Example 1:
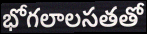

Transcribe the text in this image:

భోగలాలసతతో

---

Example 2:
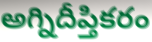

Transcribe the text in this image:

అగ్నిదీప్తికరం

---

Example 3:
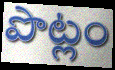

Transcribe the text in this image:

పొట్లం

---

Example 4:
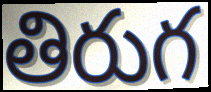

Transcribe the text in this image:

తిరుగ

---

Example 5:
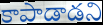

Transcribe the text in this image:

కాపాడాడని